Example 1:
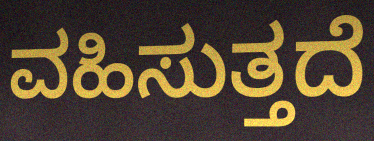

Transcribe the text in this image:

ವಹಿಸುತ್ತದೆ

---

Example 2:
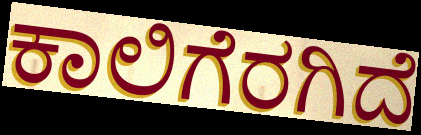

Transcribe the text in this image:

ಕಾಲಿಗೆರಗಿದೆ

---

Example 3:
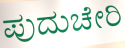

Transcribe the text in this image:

ಪುದುಚೇರಿ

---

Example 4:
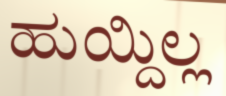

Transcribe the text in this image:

ಹುಯ್ದಿಲ್ಲ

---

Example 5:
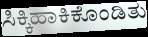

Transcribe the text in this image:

ಸಿಕ್ಕಿಹಾಕಿಕೊಂಡಿತು